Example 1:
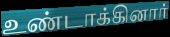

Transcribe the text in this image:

உண்டாக்கினார்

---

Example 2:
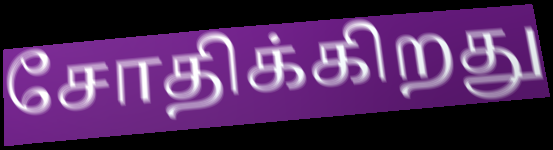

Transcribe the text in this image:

சோதிக்கிறது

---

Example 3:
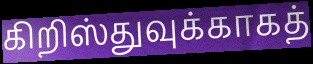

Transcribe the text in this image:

கிறிஸ்துவுக்காகத்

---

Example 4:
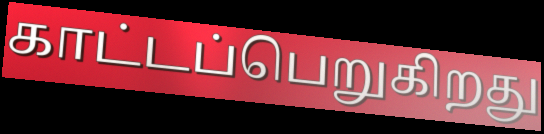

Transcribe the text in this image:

காட்டப்பெறுகிறது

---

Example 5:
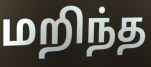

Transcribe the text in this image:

மறிந்த